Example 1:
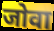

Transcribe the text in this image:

जोवा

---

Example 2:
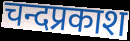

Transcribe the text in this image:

चन्दप्रकाश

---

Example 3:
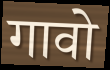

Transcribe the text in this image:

गावो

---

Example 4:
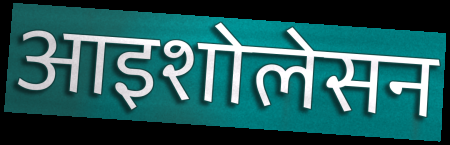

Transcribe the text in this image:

आइशोलेसन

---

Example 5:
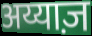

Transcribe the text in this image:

अय्याज़